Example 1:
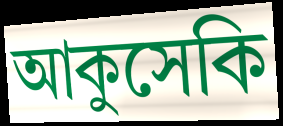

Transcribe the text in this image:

আকুসেকি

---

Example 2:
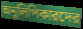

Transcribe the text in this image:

অনুলিপিকারদের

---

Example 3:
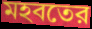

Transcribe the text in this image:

মহবতের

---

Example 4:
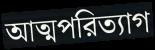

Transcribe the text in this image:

আত্মপরিত্যাগ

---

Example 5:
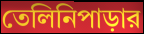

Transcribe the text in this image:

তেলিনিপাড়ার